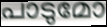
പാടുമോ